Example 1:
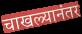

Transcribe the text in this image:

चाखल्यानंतर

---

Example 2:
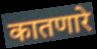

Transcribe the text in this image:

कातणारे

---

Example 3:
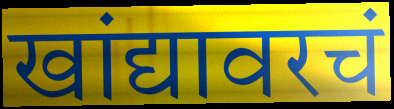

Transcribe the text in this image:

खांद्यावरचं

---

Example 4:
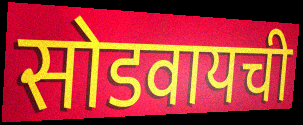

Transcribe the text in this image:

सोडवायची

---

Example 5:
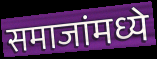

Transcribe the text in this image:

समाजांमध्ये